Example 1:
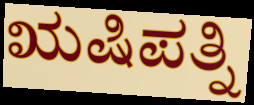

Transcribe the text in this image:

ಋಷಿಪತ್ನಿ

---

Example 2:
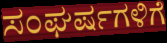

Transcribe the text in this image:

ಸಂಘರ್ಷಗಳಿಗೆ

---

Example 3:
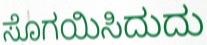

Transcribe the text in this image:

ಸೊಗಯಿಸಿದುದು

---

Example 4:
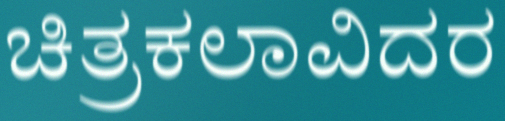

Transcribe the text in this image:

ಚಿತ್ರಕಲಾವಿದರ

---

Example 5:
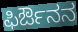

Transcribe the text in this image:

ಫಿರ್ಔನನ